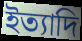
ইত্যাদি